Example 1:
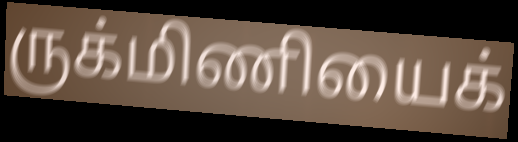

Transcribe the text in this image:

ருக்மிணியைக்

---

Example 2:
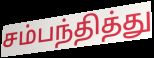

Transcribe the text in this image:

சம்பந்தித்து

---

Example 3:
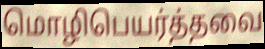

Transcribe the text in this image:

மொழிபெயர்த்தவை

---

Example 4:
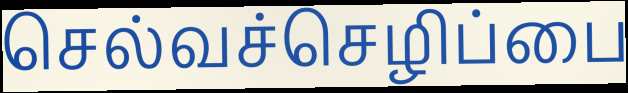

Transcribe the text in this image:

செல்வச்செழிப்பை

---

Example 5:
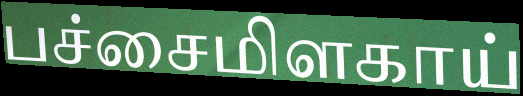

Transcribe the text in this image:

பச்சைமிளகாய்